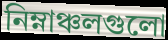
নিম্নাঞ্চলগুলো